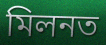
মিলনত